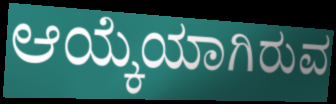
ಆಯ್ಕೆಯಾಗಿರುವ